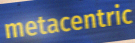
metacentric